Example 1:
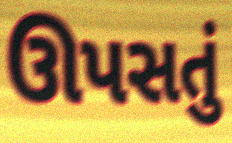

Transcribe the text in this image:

ઊપસતું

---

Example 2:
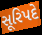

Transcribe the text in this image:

સૂરિપદે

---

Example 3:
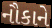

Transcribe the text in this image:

નૌકાને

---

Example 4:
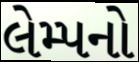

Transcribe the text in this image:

લેમ્પનો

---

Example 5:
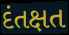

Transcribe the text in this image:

દંતક્ષત